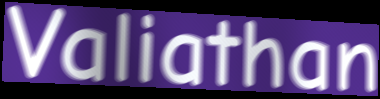
Valiathan